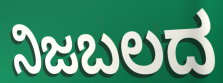
ನಿಜಬಲದ